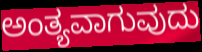
ಅಂತ್ಯವಾಗುವುದು